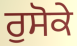
ਰੁਸੋਕੇ